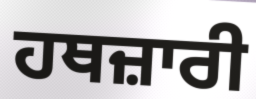
ਹਥਜ਼ਾਰੀ